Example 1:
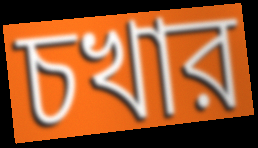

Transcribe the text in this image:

চখার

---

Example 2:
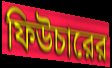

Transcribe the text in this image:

ফিউচারের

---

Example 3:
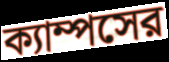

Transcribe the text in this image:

ক্যাম্পসের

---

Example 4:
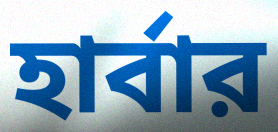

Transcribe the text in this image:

হার্বার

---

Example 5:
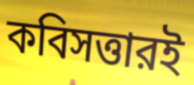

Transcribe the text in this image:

কবিসত্তারই